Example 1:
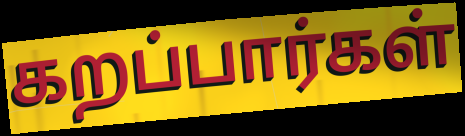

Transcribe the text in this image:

கறப்பார்கள்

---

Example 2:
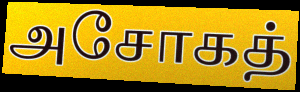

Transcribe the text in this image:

அசோகத்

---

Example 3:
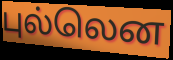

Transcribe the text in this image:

புல்லென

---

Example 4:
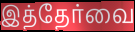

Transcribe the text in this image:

இத்தேர்வை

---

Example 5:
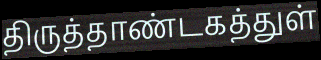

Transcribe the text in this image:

திருத்தாண்டகத்துள்